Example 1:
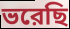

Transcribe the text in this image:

ভরেছি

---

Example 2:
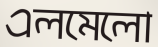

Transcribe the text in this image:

এলমেলো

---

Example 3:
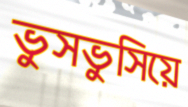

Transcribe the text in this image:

ভুসভুসিয়ে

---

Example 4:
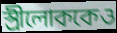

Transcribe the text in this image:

স্ত্রীলোককেও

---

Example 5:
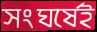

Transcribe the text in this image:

সংঘর্ষেই